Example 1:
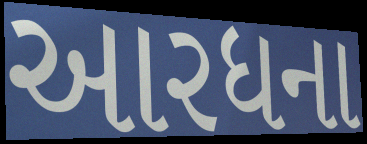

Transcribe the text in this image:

આરધના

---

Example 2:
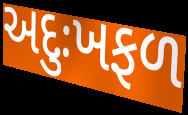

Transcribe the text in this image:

અદુઃખફળ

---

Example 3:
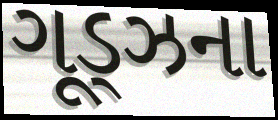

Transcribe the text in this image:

ગૂડ્ઝના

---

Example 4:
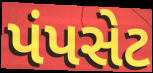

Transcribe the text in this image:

પંપસેટ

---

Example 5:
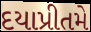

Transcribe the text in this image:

દયાપ્રીતમે